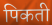
पिकती